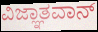
ವಿಜ್ಞಾತವಾನ್